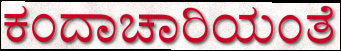
ಕಂದಾಚಾರಿಯಂತೆ